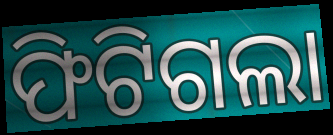
ଫିଟିଗଲା